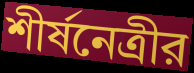
শীর্ষনেত্রীর